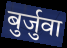
बुर्जुवा